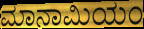
ಮಾನಾಮಿಯಂ